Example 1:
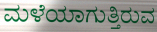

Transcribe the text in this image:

ಮಳೆಯಾಗುತ್ತಿರುವ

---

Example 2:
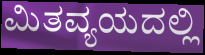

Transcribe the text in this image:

ಮಿತವ್ಯಯದಲ್ಲಿ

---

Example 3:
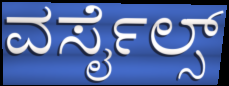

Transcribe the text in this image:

ವರ್ಸೈಲ್ಸ್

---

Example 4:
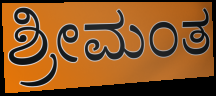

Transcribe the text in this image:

ಶ್ರೀಮಂತ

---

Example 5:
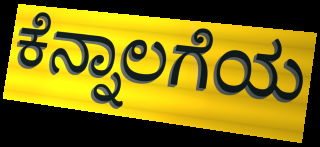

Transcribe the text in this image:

ಕೆನ್ನಾಲಗೆಯ